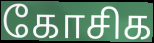
கோசிக